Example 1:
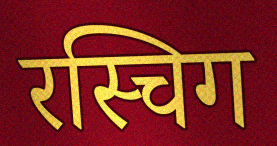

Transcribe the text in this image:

रस्चिग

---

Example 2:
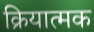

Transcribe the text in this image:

क्रियात्मक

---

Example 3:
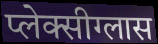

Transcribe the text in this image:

प्लेक्सीग्लास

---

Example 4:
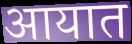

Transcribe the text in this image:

आयात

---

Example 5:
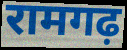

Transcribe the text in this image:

रामगढ़